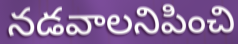
నడవాలనిపించి